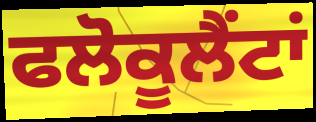
ਫਲੋਕੂਲੈਂਟਾਂ